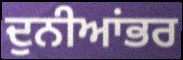
ਦੁਨੀਆਂਭਰ